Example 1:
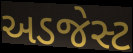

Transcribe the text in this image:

અડજેસ્ટ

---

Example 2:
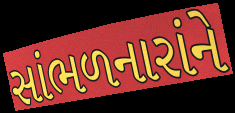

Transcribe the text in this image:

સાંભળનારાંને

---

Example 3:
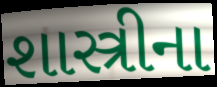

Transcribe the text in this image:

શાસ્ત્રીના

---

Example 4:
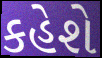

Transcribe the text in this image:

કહેશે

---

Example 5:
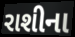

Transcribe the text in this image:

રાશીના